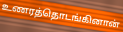
உணரத்தொடங்கினான்